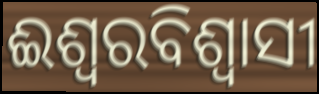
ଈଶ୍ବରବିଶ୍ବାସୀ